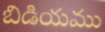
బిడియము